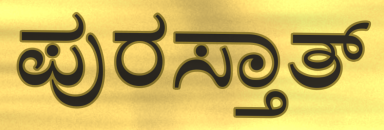
ಪುರಸ್ತಾತ್